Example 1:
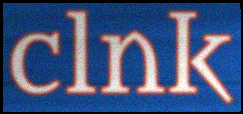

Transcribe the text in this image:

clnk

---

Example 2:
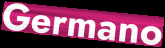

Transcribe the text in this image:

Germano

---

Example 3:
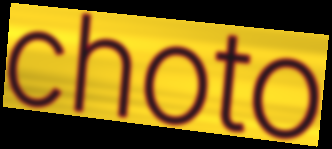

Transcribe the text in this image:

choto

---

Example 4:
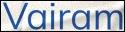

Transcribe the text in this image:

Vairam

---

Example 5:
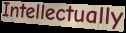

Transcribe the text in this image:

Intellectually